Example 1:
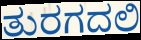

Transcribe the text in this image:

ತುರಗದಲಿ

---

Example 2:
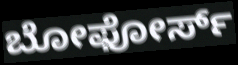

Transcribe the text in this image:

ಬೋಫೋರ್ಸ್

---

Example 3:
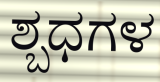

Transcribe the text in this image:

ಶ್ಬಧಗಳ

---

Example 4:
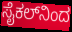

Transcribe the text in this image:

ಸೈಕಲ್‌ನಿಂದ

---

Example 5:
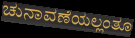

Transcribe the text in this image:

ಚುನಾವಣೆಯಲ್ಲಂತೂ